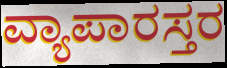
ವ್ಯಾಪಾರಸ್ತರ